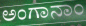
ಅಂಗಾನಾಂ